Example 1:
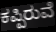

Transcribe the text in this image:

ಕಪ್ಪಿರುವೆ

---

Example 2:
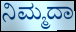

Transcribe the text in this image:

ನಿಮ್ಮದಾ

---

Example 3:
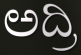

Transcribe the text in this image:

ಅದ್ರಿ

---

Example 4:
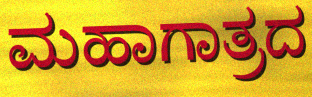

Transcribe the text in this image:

ಮಹಾಗಾತ್ರದ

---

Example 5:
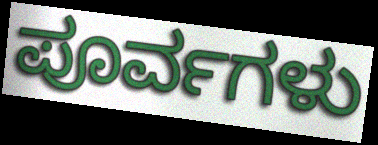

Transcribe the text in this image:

ಪೂರ್ವಗಳು